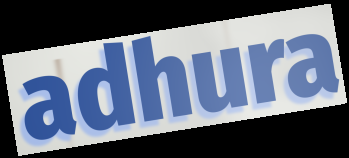
adhura